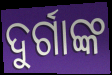
ଦୁର୍ଗାଙ୍କ